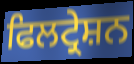
ਫਿਲਟ੍ਰੇਸ਼ਨ